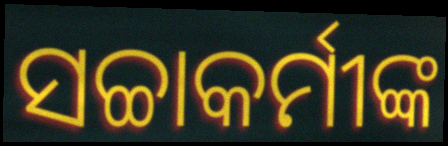
ସଚ୍ଚାକର୍ମୀଙ୍କ